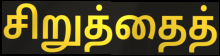
சிறுத்தைத்